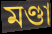
মণ্ডা